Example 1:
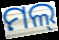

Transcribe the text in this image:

ମଲ୍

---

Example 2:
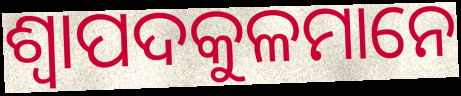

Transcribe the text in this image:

ଶ୍ୱାପଦକୁଳମାନେ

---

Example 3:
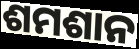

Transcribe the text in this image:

ଶମଶାନ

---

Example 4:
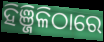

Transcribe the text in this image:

ହିଞ୍ଜିଳିଠାରେ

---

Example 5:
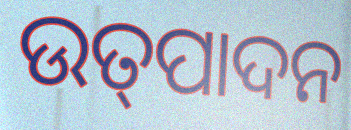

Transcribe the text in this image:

ଉତ୍‍ପାଦନ